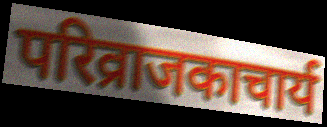
परिव्राजकाचार्य